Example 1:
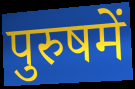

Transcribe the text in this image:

पुरुषमें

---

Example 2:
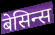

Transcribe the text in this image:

बेसिन्स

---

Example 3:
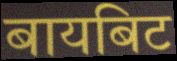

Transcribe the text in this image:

बायबिट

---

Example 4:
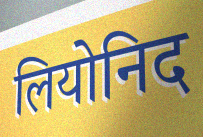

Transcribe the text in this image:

लियोनिद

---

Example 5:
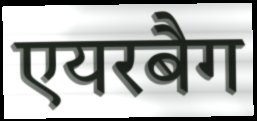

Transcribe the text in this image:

एयरबैग